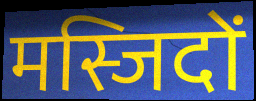
मस्‍जिदों